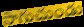
సాగుచుండు